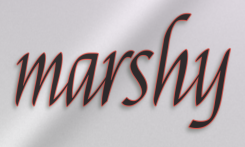
marshy